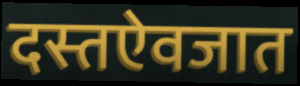
दस्तऐवजात